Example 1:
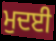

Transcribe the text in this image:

ਮੁਦਈ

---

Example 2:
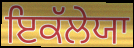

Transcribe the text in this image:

ਇਕੱਲੇਯਾ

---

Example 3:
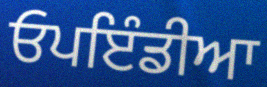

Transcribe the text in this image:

ਓਪਇੰਡੀਆ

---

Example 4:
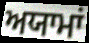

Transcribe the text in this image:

ਅਯਾਮਾਂ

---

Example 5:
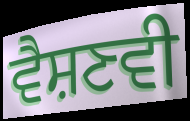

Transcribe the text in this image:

ਵੈਸ਼ਣਵੀ